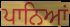
ਪਾਨਿਆਂ